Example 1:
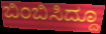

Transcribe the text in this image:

ಬಿಂಬಿಸಿದ್ದೂ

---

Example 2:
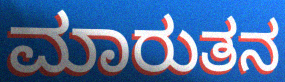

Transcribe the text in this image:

ಮಾರುತನ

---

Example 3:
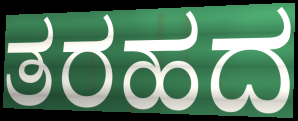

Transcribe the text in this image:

ತರಹದ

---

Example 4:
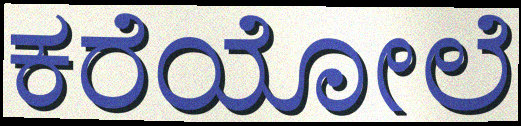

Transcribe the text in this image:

ಕರೆಯೋಲೆ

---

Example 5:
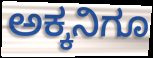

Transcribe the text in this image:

ಅಕ್ಕನಿಗೂ